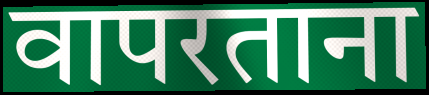
वापरताना